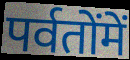
पर्वतोंमें